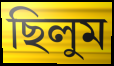
ছিলুম